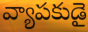
వ్యాపకుడై